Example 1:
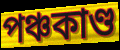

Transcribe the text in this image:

পঞ্চকাণ্ড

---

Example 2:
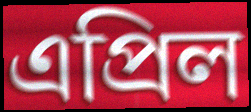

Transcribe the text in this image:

এপ্রিল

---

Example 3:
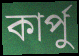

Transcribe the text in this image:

কার্পু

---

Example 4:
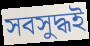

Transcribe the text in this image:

সবসুদ্ধই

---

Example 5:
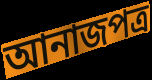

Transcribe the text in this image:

আনাজপত্র